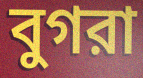
বুগরা